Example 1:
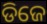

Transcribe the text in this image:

ଡିଜେ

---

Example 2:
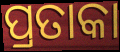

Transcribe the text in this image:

ପ୍ରତାକା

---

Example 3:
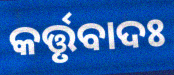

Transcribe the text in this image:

କର୍ତ୍ତୃବାଦଃ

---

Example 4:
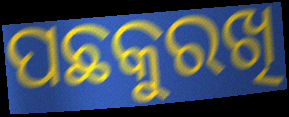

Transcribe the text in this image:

ପଛକୁରଖି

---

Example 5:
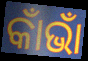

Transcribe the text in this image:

କାଁଭାଁ